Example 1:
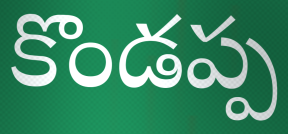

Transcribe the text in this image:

కొండప్ప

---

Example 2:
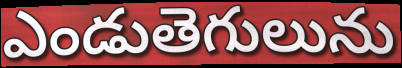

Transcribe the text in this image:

ఎండుతెగులును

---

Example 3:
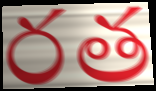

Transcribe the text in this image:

రత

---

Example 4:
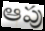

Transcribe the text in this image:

ఆపు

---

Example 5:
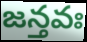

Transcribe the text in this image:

జన్తవః